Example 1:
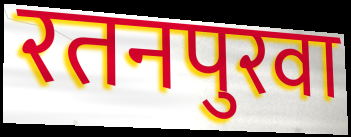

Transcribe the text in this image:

रतनपुरवा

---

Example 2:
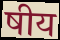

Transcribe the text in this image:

षीय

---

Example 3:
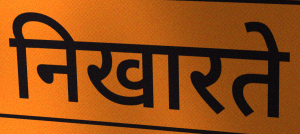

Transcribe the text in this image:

निखारते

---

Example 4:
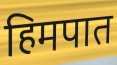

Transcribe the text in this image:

हिमपात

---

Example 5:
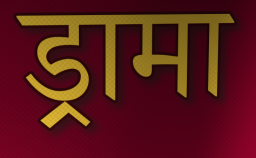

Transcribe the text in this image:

ड्रामा